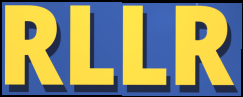
RLLR